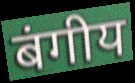
बंगीय